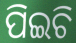
ପିଇଚି